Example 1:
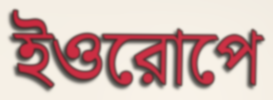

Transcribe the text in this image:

ইওরোপে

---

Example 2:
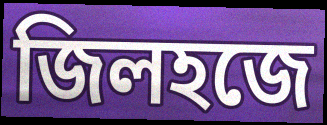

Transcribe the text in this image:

জিলহজে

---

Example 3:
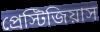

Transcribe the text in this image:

প্রেস্টিজিয়াস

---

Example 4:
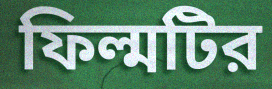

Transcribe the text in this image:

ফিল্মটির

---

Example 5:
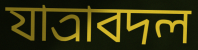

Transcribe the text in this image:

যাত্রাবদল